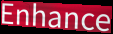
Enhance